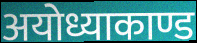
अयोध्याकाण्ड